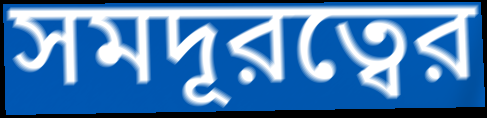
সমদূরত্বের